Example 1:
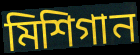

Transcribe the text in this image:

মিশিগান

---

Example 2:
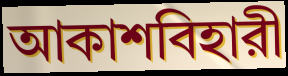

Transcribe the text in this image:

আকাশবিহারী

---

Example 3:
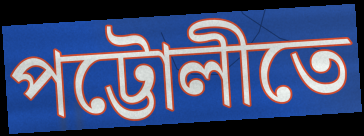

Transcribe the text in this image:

পট্টোলীতে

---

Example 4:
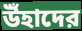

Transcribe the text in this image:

উঁহাদের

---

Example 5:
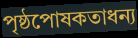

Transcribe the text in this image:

পৃষ্ঠপোষকতাধন্য